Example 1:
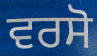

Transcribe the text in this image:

ਵਰਸੋ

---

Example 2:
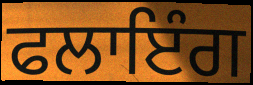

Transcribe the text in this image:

ਫਲਾਇੰਗ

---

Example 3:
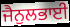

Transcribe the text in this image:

ਜੈਨੁਲਭਾਈ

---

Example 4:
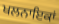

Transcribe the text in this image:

ਖਲਨਾਇਕਾਂ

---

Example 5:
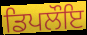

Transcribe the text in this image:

ਡਿਪਲੌਇ